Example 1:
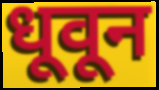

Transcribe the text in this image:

धूवून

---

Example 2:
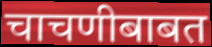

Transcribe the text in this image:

चाचणीबाबत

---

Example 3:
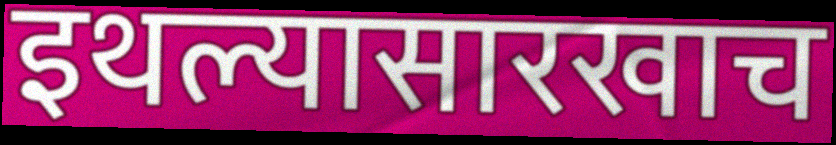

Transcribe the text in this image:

इथल्यासारखाच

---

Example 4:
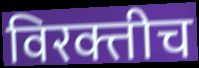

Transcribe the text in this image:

विरक्तीच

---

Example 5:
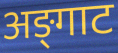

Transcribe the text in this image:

अङ्गाट